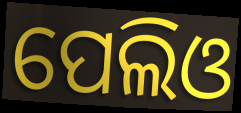
ପେଲିଓ